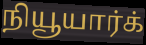
நியூயார்க்